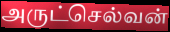
அருட்செல்வன்